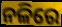
ନଳିରେ